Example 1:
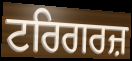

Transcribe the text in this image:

ਟਰਿਗਰਜ਼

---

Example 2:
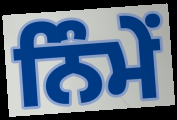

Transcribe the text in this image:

ਨਿੰਮੇਂ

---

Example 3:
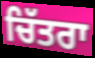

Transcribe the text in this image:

ਚਿੱਤਰਾ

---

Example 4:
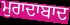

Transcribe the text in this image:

ਮੁਰਾਦਾਬਾਦ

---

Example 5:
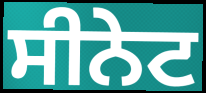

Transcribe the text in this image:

ਸੀਨੇਟ